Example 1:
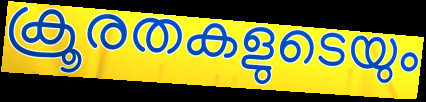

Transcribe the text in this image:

ക്രൂരതകളുടെയും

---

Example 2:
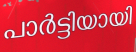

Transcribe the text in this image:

പാർട്ടിയായി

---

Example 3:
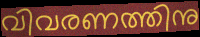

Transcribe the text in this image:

വിവരണത്തിനു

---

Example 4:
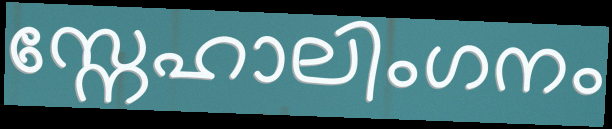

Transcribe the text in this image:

സ്നേഹാലിംഗനം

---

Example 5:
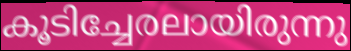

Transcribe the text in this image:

കൂടിച്ചേരലായിരുന്നു